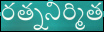
రత్ననిర్మిత